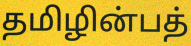
தமிழின்பத்